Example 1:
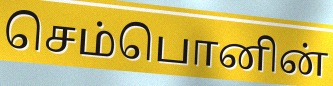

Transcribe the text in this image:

செம்பொனின்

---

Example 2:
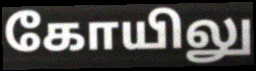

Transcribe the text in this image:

கோயிலு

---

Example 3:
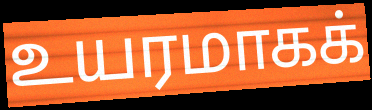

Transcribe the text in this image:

உயரமாகக்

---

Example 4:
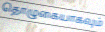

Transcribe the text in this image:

தொழுகையாகவும்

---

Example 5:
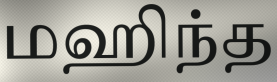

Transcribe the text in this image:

மஹிந்த